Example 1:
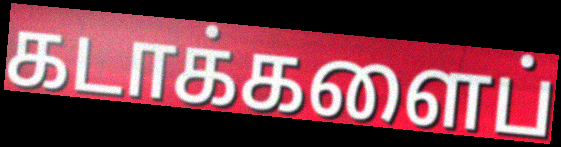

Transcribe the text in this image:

கடாக்களைப்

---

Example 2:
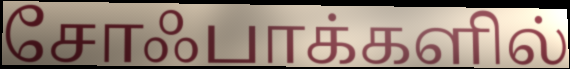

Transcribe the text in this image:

சோஃபாக்களில்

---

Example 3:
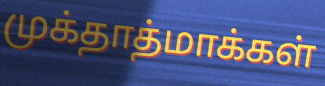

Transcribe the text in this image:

முக்தாத்மாக்கள்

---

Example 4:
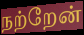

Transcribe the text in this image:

நற்றேன்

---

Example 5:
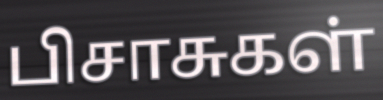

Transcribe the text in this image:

பிசாசுகள்